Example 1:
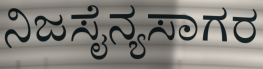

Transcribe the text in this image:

ನಿಜಸೈನ್ಯಸಾಗರ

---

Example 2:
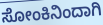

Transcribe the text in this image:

ಸೋಂಕಿನಿಂದಾಗಿ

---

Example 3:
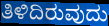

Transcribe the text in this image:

ತಿಳಿದಿರುವುದು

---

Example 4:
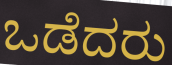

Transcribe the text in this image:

ಒಡೆದರು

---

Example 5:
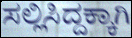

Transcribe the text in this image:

ಸಲ್ಲಿಸಿದ್ದಕ್ಕಾಗಿ